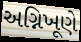
અગ્નિખૂણે